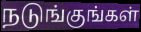
நடுங்குங்கள்